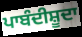
ਪਾਬੰਦੀਸ਼ੂਦਾ